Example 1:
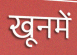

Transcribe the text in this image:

खूनमें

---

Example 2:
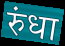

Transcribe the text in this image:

रुंधा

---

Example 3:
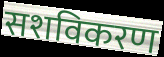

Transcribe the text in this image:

सशविकरण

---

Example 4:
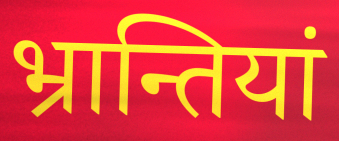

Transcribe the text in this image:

भ्रान्तियां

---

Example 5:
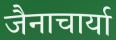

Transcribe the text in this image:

जैनाचार्या